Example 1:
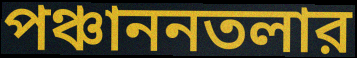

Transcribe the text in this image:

পঞ্চাননতলার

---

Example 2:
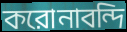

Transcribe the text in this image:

করোনাবন্দি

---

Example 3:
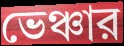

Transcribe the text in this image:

ভেঞ্চার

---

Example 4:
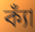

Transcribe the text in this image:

ক্যাঁ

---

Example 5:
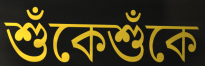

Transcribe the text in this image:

শুঁকেশুঁকে